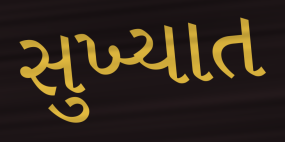
સુખ્યાત